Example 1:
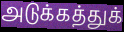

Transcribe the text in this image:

அடுக்கத்துக்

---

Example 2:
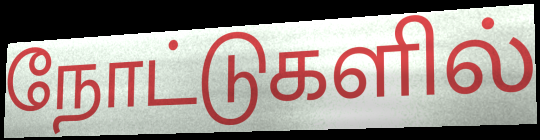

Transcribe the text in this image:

நோட்டுகளில்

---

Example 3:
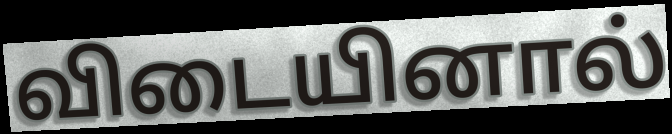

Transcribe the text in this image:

விடையினால்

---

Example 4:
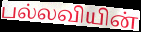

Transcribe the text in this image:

பல்லவியின்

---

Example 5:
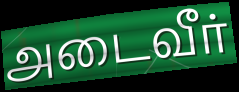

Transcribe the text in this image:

அடைவீர்